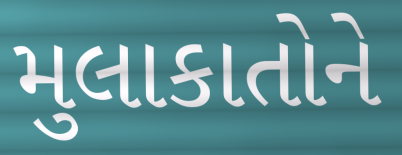
મુલાકાતોને